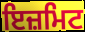
ਇਜ਼ਮਿਟ